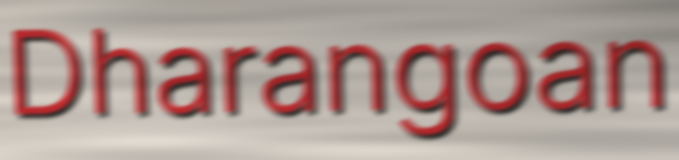
Dharangoan